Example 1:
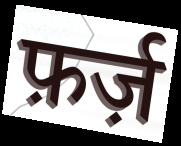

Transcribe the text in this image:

फ़र्ज़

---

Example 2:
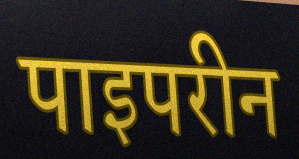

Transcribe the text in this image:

पाइपरीन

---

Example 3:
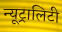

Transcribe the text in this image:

न्यूट्रालिटी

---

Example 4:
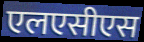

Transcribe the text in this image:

एलएसीएस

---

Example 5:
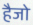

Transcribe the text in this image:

हैजो